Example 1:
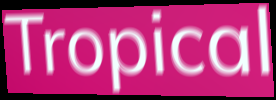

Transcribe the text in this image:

Tropical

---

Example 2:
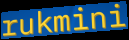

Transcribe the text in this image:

rukmini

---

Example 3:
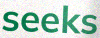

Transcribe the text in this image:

seeks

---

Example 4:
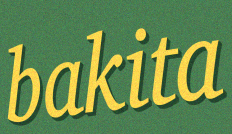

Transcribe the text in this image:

bakita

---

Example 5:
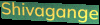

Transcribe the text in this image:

Shivagange